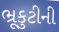
ભ્રૂકુટીની